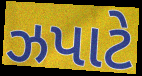
ઝપાટે